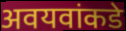
अवयवांकडे